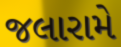
જલારામે